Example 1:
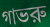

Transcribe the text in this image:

গাভরু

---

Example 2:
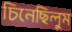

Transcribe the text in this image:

চিনেছিলুম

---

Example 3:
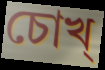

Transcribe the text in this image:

চোখ্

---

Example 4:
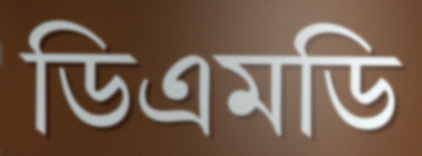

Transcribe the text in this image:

ডিএমডি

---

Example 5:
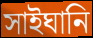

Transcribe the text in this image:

সাইঘানি